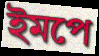
ইমপে